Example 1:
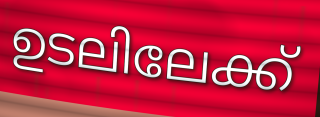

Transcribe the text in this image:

ഉടലിലേക്ക്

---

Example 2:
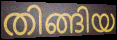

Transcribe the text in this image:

തിങ്ങിയ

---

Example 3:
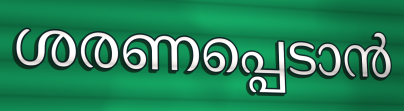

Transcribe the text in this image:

ശരണപ്പെടാൻ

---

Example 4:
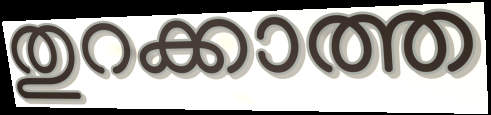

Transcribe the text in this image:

തുറക്കാത്ത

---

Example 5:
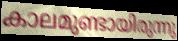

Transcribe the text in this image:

കാലമുണ്ടായിരുന്നു